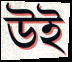
উই